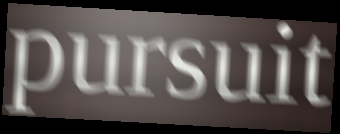
pursuit